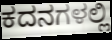
ಕದನಗಳಲ್ಲಿ